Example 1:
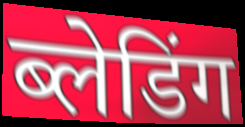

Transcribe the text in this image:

ब्लेडिंग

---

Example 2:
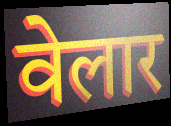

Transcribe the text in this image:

वेलार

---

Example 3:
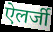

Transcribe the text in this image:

ऐलर्जी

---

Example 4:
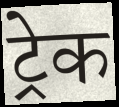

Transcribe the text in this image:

ट्रेक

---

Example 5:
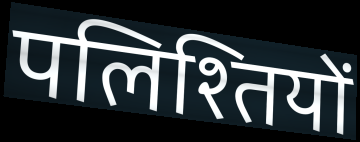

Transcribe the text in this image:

पलिश्तियों